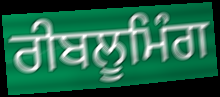
ਰੀਬਲੂਮਿੰਗ